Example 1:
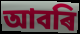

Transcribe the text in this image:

আবৰি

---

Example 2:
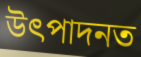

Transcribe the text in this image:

উৎপাদনত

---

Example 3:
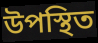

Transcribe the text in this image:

উপস্থিত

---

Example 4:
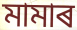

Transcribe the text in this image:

মামাৰ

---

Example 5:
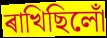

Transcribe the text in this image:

ৰাখিছিলোঁ